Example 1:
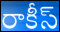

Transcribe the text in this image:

రాకీస్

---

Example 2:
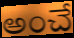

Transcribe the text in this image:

అంచే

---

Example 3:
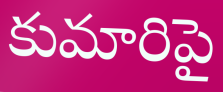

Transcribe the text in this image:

కుమారిపై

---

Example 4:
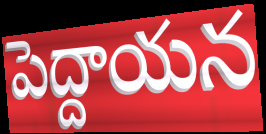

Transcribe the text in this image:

పెద్దాయన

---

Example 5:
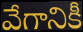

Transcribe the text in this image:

వేగానికీ